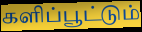
களிப்பூட்டும்